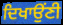
ਦਿਖਾਉਂਣੀ